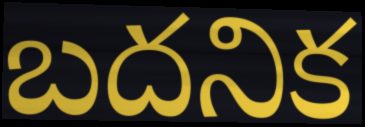
బదనిక